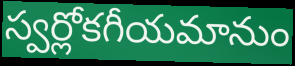
స్వర్లోకగీయమానుం